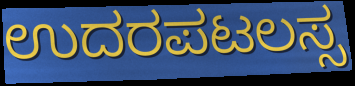
ಉದರಪಟಲಸ್ಸ